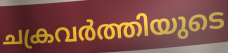
ചക്രവർത്തിയുടെ